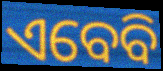
ଏବେବି